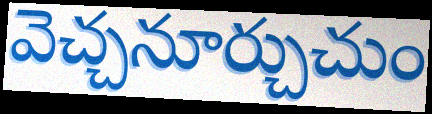
వెచ్చనూర్చుచుం